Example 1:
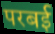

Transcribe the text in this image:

परबई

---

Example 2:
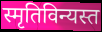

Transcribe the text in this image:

स्मृतिविन्यस्त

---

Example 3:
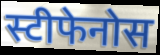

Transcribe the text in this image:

स्टीफेनोस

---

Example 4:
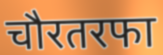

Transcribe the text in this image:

चौरतरफा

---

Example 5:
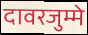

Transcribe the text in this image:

दावरजुम्मे